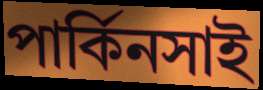
পার্কিনসাই